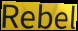
Rebel